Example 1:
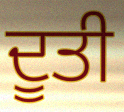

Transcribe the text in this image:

ਦੂਤੀ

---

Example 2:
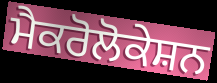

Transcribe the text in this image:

ਮੈਕਰੋਲੋਕੇਸ਼ਨ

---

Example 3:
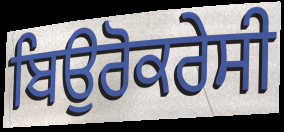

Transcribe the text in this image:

ਬਿਉਰੋਕਰੇਸੀ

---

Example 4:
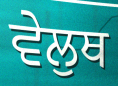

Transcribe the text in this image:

ਵੇਲੁਥ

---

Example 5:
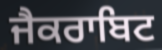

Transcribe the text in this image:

ਜੈਕਰਾਬਿਟ